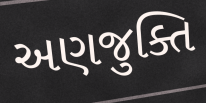
અણજુક્તિ